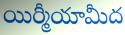
యిర్మీయామీద